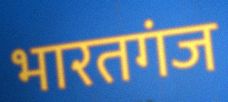
भारतगंज